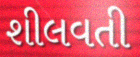
શીલવતી